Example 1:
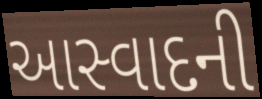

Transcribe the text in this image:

આસ્વાદની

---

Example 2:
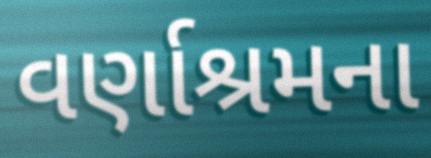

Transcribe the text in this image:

વર્ણાશ્રમના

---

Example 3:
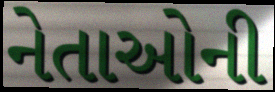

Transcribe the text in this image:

નેતાઓની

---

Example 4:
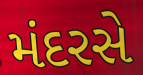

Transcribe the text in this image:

મંદરસે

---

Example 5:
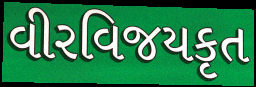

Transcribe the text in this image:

વીરવિજયકૃત